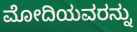
ಮೋದಿಯವರನ್ನು